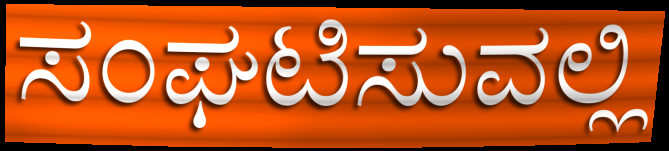
ಸಂಘಟಿಸುವಲ್ಲಿ